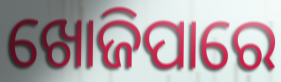
ଖୋଜିପାରେ